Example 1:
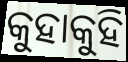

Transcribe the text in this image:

କୁହାକୁହି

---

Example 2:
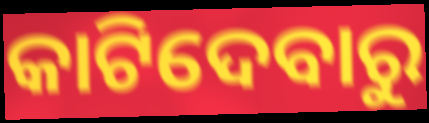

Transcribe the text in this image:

କାଟିଦେବାରୁ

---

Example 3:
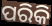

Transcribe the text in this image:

ପରିକି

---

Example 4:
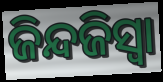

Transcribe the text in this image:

ଜିନ୍ଦଜିସ୍ୱା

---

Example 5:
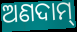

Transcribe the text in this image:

ଅଣଦାମ୍